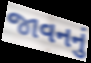
જાવનનું